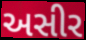
અસીર